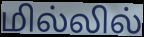
மில்லில்